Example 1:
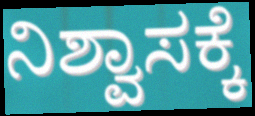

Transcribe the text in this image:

ನಿಶ್ವಾಸಕ್ಕೆ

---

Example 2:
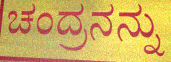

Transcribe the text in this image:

ಚಂದ್ರನನ್ನು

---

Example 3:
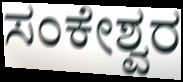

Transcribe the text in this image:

ಸಂಕೇಶ್ವರ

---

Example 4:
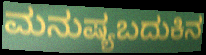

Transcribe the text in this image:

ಮನುಷ್ಯಬದುಕಿನ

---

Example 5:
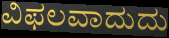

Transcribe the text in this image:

ವಿಫಲವಾದುದು